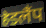
हेडलैंप